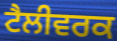
ਟੈਲੀਵਰਕ